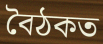
বৈঠকত